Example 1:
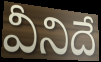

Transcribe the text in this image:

వీనిదే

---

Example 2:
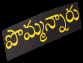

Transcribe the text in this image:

పొమ్మన్నారు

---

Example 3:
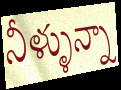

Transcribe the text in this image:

నీళ్ళున్నా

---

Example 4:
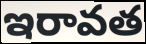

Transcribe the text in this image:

ఇరావత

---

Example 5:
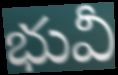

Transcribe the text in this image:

భువీ